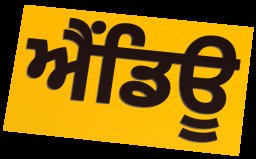
ਐਂਡਿਊ